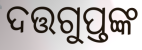
ଦତ୍ତଗୁପ୍ତଙ୍କ